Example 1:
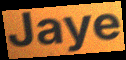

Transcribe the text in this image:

Jaye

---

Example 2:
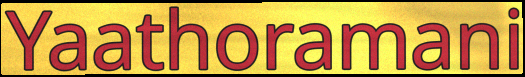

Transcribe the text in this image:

Yaathoramani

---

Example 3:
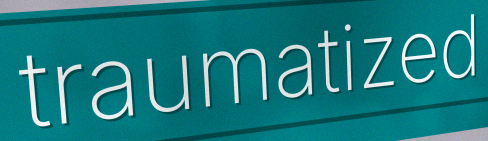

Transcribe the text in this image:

traumatized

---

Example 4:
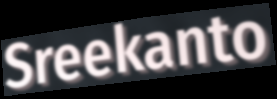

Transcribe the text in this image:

Sreekanto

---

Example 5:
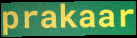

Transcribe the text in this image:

prakaar